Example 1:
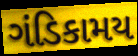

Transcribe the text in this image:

ગંડિકામય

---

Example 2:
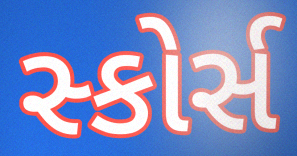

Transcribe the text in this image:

સ્કોર્સ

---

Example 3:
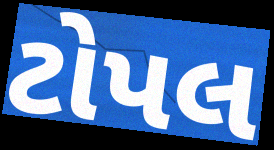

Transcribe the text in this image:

ટોપલ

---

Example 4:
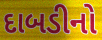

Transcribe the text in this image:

દાબડીનો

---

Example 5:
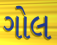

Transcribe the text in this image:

ગોલ